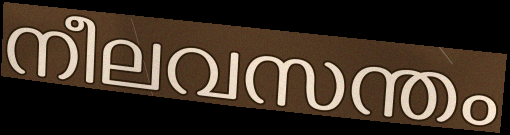
നീലവസന്തം